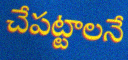
చేపట్టాలనే